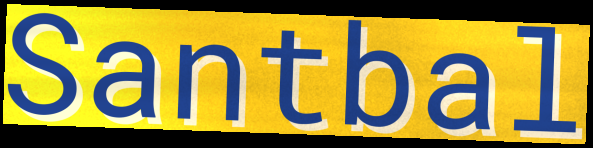
Santbal